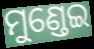
ମୁଣ୍ଡେଇ